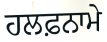
ਹਲਫ਼ਨਾਮੇ